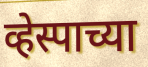
व्हेस्पाच्या